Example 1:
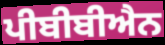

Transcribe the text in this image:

ਪੀਬੀਬੀਐਨ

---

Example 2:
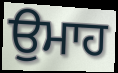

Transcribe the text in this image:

ਉਮਾਹ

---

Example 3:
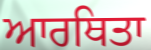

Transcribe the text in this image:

ਆਰਥਿਤਾ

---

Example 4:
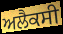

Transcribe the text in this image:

ਅਲੈਕਸੀ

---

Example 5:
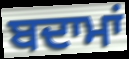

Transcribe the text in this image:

ਬਦਾਮਾਂ